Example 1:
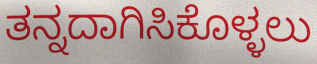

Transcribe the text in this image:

ತನ್ನದಾಗಿಸಿಕೊಳ್ಳಲು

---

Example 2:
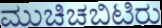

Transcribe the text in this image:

ಮುಚಿಚಬಿಟಿರು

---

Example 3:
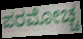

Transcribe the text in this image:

ಪರಮೋಚ್ಚ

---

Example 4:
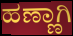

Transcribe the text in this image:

ಹಣ್ಣಾಗಿ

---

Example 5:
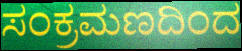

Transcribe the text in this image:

ಸಂಕ್ರಮಣದಿಂದ